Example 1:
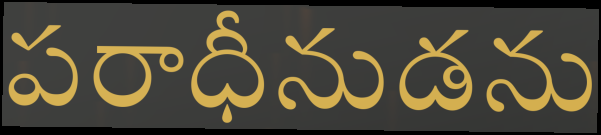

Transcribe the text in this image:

పరాధీనుడను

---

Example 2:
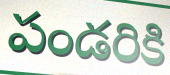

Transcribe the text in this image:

పండరికి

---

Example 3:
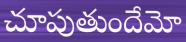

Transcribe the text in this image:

చూపుతుందేమో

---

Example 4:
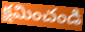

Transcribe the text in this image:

క్షమించండి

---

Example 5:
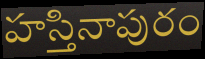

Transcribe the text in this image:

హస్తినాపురం